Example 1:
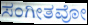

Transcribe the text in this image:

ಸಂಗೀತವೋ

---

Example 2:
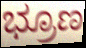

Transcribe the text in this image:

ಭ್ರೂಣ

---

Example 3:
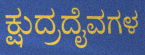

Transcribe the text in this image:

ಕ್ಷುದ್ರದೈವಗಳ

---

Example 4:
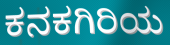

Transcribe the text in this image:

ಕನಕಗಿರಿಯ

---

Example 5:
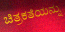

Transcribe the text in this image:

ಚಿತ್ರಕತೆಯನ್ನು